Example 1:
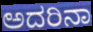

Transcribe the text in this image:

ಅದರಿನಾ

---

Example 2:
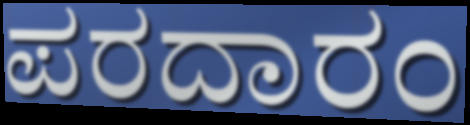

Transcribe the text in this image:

ಪರದಾರಂ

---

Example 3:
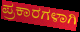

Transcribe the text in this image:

ಪ್ರಕಾರಗಳಾಗಿ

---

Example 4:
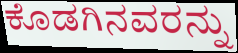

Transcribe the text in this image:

ಕೊಡಗಿನವರನ್ನು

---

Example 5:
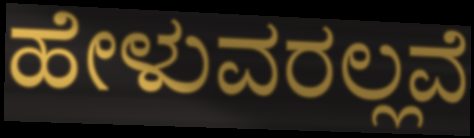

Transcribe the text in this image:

ಹೇಳುವರಲ್ಲವೆ